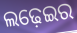
ଲଢ଼େଇର